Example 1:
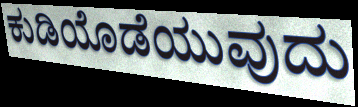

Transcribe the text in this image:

ಕುಡಿಯೊಡೆಯುವುದು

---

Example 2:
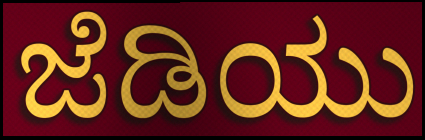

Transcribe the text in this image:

ಜೆಡಿಯು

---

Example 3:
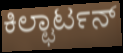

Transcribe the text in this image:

ಕಿಲ್ಟಾರ್ಟನ್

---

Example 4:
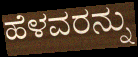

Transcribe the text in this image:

ಹೆಳವರನ್ನು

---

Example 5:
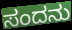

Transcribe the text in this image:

ಸಂದನು